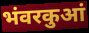
भंवरकुआं